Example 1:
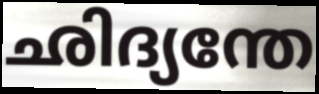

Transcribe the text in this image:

ഛിദ്യന്തേ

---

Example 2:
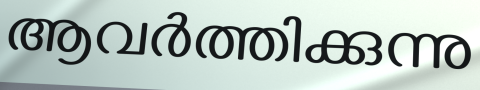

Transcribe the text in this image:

ആവർത്തിക്കുന്നു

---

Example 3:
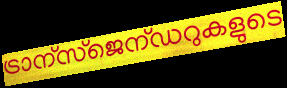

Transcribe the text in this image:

ട്രാന്സ്ജെന്ഡറുകളുടെ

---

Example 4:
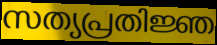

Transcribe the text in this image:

സത്യപ്രതിജ്ഞ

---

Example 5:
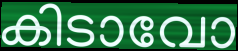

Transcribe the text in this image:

കിടാവോ